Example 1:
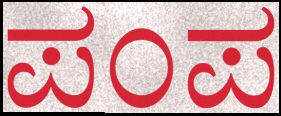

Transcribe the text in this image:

ಪಂಪ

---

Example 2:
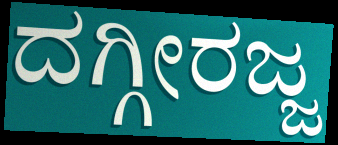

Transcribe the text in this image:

ದಗ್ಗೀರಜ್ಜ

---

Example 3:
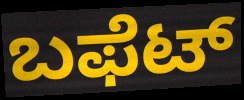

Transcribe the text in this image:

ಬಫೆಟ್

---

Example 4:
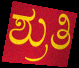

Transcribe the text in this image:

ಶ್ರುತಿ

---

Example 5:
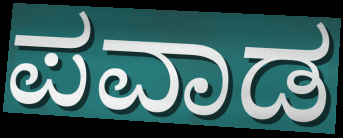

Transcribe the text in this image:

ಪವಾಡ